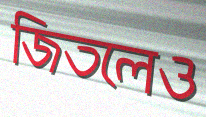
জিতলেও